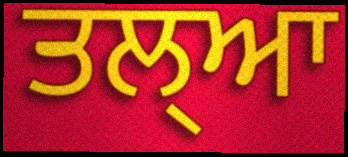
ਤਲ੍ਆ